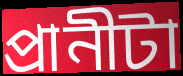
প্রানীটা